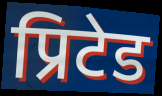
प्रिटेड